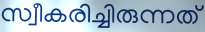
സ്വീകരിച്ചിരുന്നത്